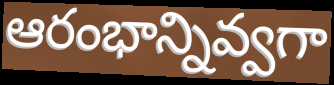
ఆరంభాన్నివ్వగా